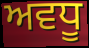
ਅਵਧੂ